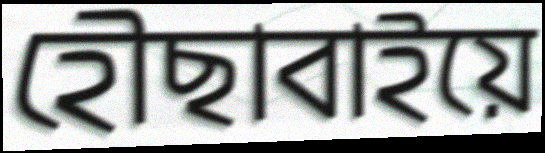
হৌছাবাইয়ে